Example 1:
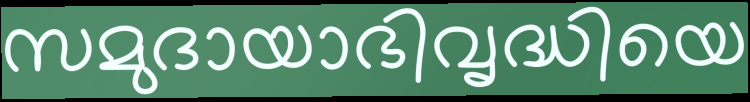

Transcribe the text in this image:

സമുദായാഭിവൃദ്ധിയെ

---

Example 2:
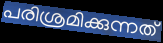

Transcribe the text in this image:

പരിശ്രമിക്കുന്നത്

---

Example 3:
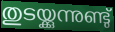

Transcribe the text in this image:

തുടയ്ക്കുന്നുണ്ടു്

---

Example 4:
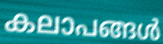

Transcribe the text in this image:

കലാപങ്ങൾ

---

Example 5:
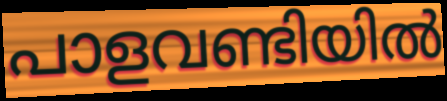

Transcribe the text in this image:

പാളവണ്ടിയിൽ